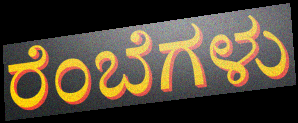
ರೆಂಬೆಗಳು